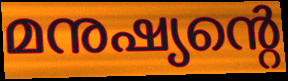
മനുഷ്യന്റെ